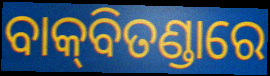
ବାକ୍‌ବିତଣ୍ଡାରେ